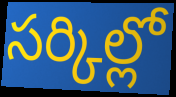
సర్కిల్లో